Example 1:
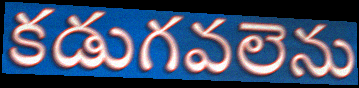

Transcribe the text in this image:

కడుగవలెను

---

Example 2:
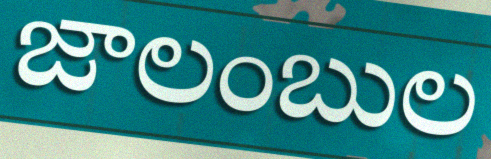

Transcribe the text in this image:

జాలంబుల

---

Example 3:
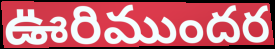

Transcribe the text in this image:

ఊరిముందర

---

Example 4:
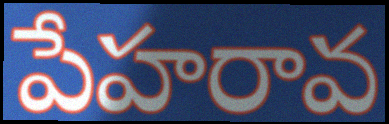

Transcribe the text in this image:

పేహరావ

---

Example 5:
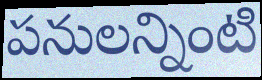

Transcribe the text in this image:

పనులన్నింటి